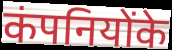
कंपनियोंके